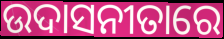
ଉଦାସନୀତାରେ